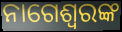
ନାଗେଶ୍ୱରଙ୍କ